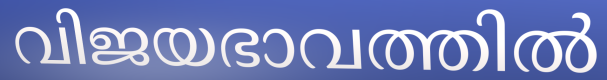
വിജയഭാവത്തിൽ